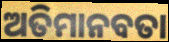
ଅତିମାନବତା